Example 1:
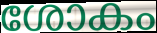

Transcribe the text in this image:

ശോകം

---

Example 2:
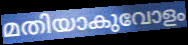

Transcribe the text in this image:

മതിയാകുവോളം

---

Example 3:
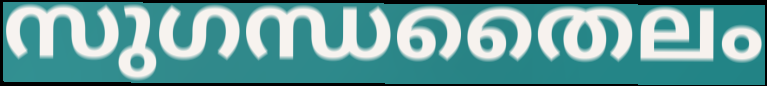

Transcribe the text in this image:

സുഗന്ധതൈലം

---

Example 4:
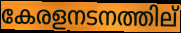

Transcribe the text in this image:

കേരളനടനത്തില്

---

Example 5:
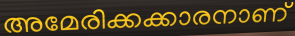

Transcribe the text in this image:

അമേരിക്കക്കാരനാണ്